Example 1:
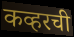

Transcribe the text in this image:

कव्हरची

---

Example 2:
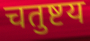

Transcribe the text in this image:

चतुष्टय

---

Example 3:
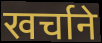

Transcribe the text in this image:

खर्चाने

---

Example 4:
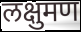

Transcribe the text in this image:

लक्षुमण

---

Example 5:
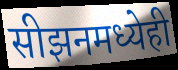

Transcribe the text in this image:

सीझनमध्येही